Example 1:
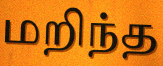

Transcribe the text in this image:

மறிந்த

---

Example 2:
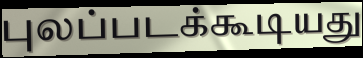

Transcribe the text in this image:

புலப்படக்கூடியது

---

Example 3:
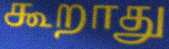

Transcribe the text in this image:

கூறாது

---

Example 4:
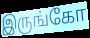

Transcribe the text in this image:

இருங்கோ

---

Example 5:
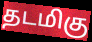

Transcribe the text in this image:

தடமிகு